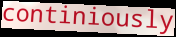
continiously